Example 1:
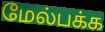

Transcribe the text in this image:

மேல்பக்க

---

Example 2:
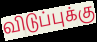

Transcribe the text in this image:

விடுப்புக்கு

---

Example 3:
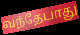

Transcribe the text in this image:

வந்தேபாது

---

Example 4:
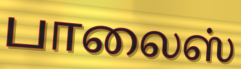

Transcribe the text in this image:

பாலைஸ்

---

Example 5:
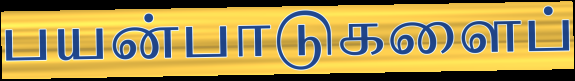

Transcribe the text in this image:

பயன்பாடுகளைப்